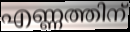
എണ്ണത്തിന്